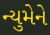
ન્યુમેને